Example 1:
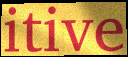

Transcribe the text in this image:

itive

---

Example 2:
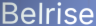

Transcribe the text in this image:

Belrise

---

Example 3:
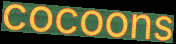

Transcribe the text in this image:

cocoons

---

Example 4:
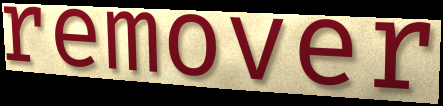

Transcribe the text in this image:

remover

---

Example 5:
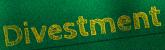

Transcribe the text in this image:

Divestment